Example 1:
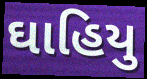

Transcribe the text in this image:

ઘાહિયુ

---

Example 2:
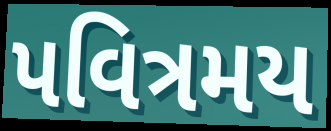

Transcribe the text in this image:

પવિત્રમય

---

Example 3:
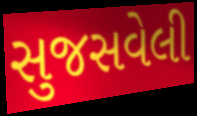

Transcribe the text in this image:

સુજસવેલી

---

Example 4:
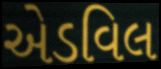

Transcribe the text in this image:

એડવિલ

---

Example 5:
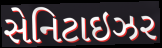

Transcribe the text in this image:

સેનિટાઇઝર